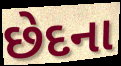
છેદના